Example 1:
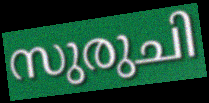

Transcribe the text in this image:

സുരുചി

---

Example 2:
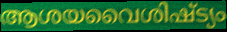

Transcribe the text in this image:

ആശയവൈശിഷ്ട്യം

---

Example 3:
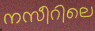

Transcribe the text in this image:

നസീറിലെ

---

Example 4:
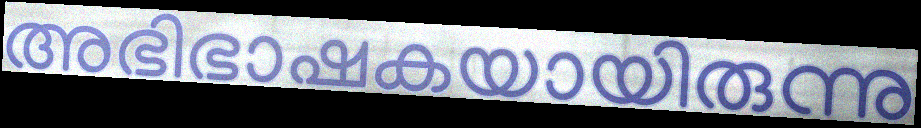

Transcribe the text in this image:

അഭിഭാഷകയായിരുന്നു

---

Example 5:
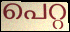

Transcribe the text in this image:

പെറ്റ